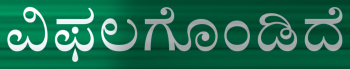
ವಿಫಲಗೊಂಡಿದೆ